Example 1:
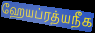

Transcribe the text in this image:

ஹேயப்ரத்யநீக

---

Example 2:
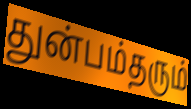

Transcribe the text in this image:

துன்பம்தரும்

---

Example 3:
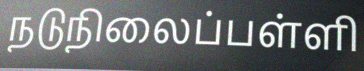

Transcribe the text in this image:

நடுநிலைப்பள்ளி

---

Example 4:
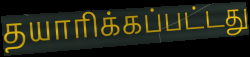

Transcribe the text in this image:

தயாரிக்கப்பட்டது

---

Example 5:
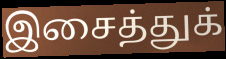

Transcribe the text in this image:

இசைத்துக்